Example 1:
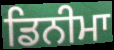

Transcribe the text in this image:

ਡਿਨੀਮਾ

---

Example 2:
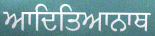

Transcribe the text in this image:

ਆਦਿਤਿਆਨਾਥ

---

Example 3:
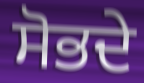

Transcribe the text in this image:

ਸੋਭਦੇ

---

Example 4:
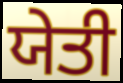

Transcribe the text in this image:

ਯੇਤੀ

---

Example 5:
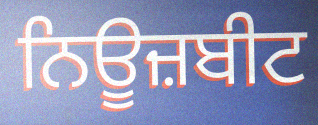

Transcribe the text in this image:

ਨਿਊਜ਼ਬੀਟ